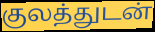
குலத்துடன்